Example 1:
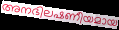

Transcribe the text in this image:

അനഭിലഷണീയമായ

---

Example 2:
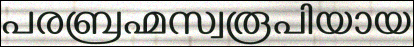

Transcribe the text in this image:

പരബ്രഹ്മസ്വരൂപിയായ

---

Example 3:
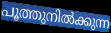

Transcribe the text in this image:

പൂത്തുനിൽക്കുന്ന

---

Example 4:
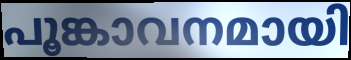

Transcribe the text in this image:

പൂങ്കാവനമായി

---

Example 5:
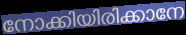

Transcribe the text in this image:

നോക്കിയിരിക്കാനേ